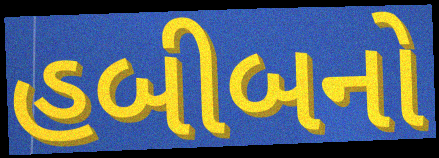
હબીબનો